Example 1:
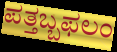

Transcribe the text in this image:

ಪತ್ತಬ್ಬಫಲಂ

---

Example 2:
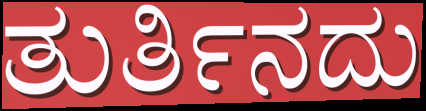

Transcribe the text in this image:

ತುರ್ತಿನದು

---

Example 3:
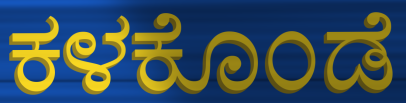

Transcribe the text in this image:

ಕಳಕೊಂಡೆ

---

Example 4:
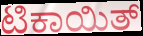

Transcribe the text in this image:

ಟಿಕಾಯಿತ್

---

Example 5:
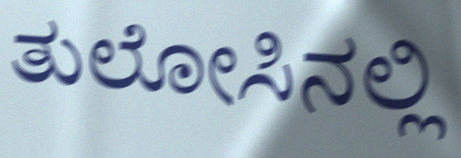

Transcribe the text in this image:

ತುಲೋಸಿನಲ್ಲಿ